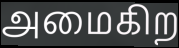
அமைகிற